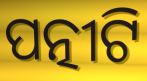
ପତ୍ନୀଟି